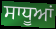
ਸਾਧੂਆਂ